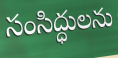
సంసిద్ధులను